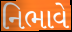
નિભાવે